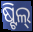
ଷ୍ଟିଲ୍